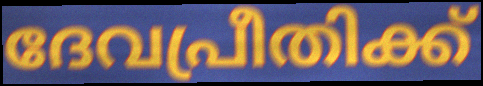
ദേവപ്രീതിക്ക്